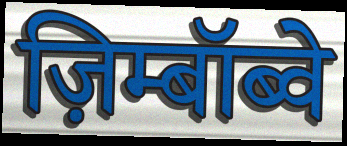
ज़िम्बॉब्वे